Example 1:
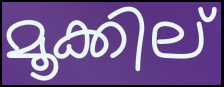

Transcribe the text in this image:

മൂക്കില്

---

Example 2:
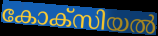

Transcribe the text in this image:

കോക്സിയൽ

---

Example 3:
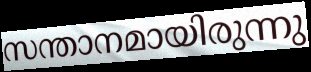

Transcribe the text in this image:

സന്താനമായിരുന്നു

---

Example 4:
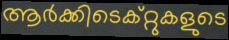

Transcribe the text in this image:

ആർക്കിടെക്റ്റുകളുടെ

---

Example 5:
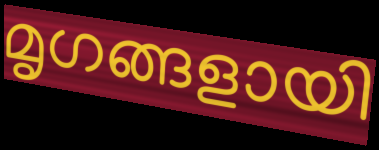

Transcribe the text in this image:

മൃഗങ്ങളായി